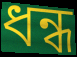
ধন্ধ